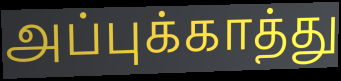
அப்புக்காத்து